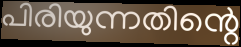
പിരിയുന്നതിന്റെ